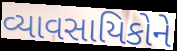
વ્યાવસાયિકોને